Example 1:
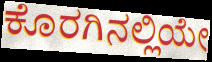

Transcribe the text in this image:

ಕೊರಗಿನಲ್ಲಿಯೇ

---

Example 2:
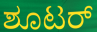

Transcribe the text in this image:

ಶೂಟರ್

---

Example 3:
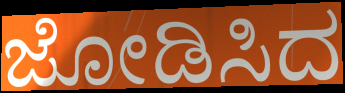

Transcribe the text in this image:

ಜೋಡಿಸಿದ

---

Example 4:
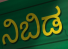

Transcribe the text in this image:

ನಿಬಿಡ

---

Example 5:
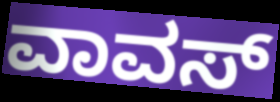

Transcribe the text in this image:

ವಾವಸ್